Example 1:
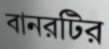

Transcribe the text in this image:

বানরটির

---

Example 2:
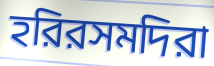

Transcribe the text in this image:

হরিরসমদিরা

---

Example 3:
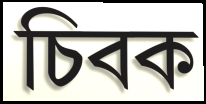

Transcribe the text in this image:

চিবক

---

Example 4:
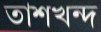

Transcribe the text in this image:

তাশখন্দ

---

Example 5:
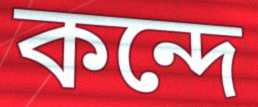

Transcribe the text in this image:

কন্দে